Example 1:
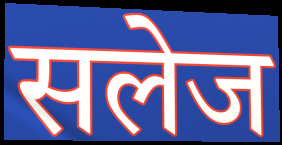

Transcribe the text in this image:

सलेज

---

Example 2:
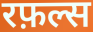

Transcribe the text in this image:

रफ़ल्स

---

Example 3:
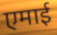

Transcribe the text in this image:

एमाई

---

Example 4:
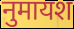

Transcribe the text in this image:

नुमायश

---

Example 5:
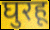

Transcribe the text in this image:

घुरहू